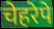
चेहरेपे